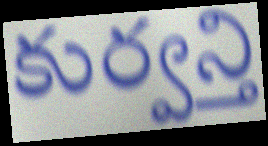
కుర్వన్తి